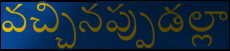
వచ్చినప్పుడల్లా